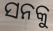
ସନକୁ